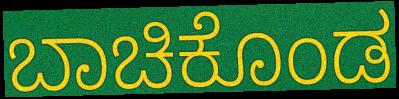
ಬಾಚಿಕೊಂಡ